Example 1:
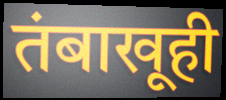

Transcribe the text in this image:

तंबाखूही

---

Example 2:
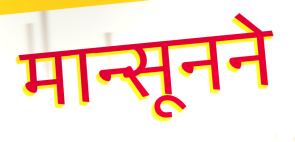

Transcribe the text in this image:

मान्सूनने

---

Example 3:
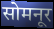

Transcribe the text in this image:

सोमनूर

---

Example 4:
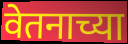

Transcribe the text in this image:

वेतनाच्या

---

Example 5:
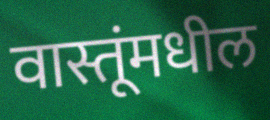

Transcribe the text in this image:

वास्तूंमधील